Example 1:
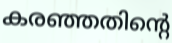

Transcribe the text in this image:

കരഞ്ഞതിന്റെ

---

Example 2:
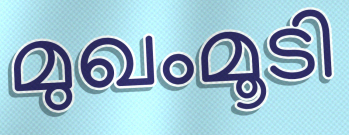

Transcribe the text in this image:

മുഖംമൂടി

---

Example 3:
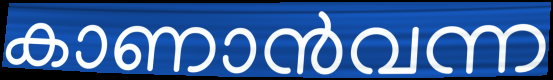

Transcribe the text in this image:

കാണാൻവന്ന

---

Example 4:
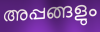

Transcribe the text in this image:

അപ്പങ്ങളും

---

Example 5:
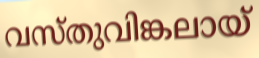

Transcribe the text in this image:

വസ്തുവിങ്കലായ്